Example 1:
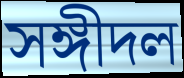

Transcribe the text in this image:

সঙ্গীদল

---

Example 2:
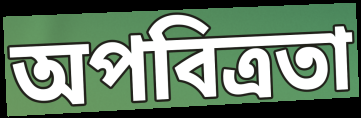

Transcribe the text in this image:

অপবিত্রতা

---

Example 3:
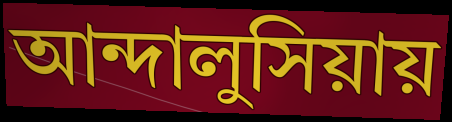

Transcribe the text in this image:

আন্দালুসিয়ায়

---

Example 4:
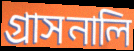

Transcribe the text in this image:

গ্রাসনালি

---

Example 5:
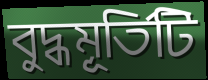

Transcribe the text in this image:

বুদ্ধমূর্তিটি